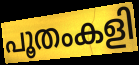
പൂതംകളി